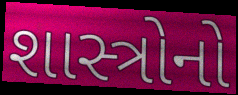
શાસ્ત્રોનો